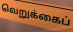
வெறுக்கைப்